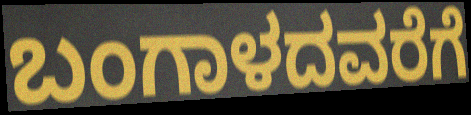
ಬಂಗಾಳದವರೆಗೆ